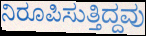
ನಿರೂಪಿಸುತ್ತಿದ್ದವು